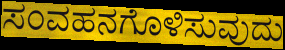
ಸಂವಹನಗೊಳಿಸುವುದು